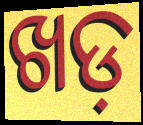
ଖଡ଼